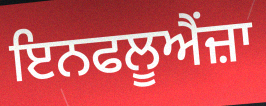
ਇਨਫਲੂਐਂਜ਼ਾ